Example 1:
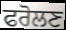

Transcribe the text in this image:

ਫਰੋਲਣ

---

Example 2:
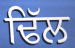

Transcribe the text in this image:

ਢਿੱਲ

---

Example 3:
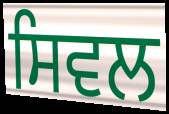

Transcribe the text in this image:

ਸਿਵਲ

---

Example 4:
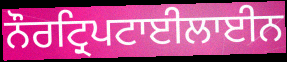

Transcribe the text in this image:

ਨੌਰਟ੍ਰਿਪਟਾਈਲਾਈਨ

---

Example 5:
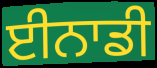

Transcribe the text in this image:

ਈਨਾਡੀ